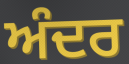
ਅੰਦਰ